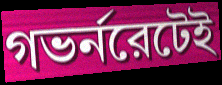
গভর্নরেটেই